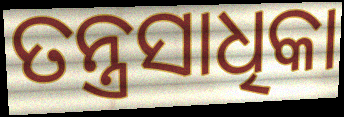
ତନ୍ତ୍ରସାଧିକା